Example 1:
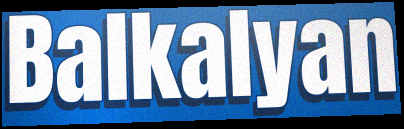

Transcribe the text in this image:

Balkalyan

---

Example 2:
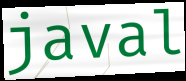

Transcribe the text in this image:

javal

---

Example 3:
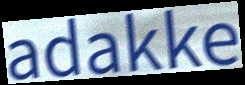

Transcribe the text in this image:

adakke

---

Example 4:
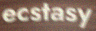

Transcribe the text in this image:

ecstasy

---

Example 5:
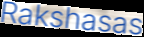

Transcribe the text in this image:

Rakshasas